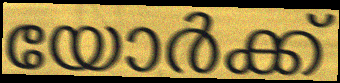
യോർക്ക്